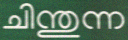
ചിന്തുന്ന